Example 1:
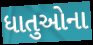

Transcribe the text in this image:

ધાતુઓના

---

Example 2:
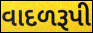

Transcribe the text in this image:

વાદળરૂપી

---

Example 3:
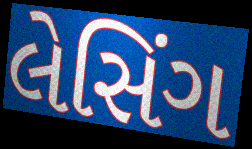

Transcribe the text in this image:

લેસિંગ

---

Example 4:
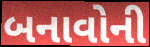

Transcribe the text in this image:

બનાવોની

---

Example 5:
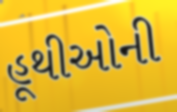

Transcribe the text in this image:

હૂથીઓની